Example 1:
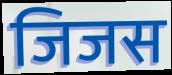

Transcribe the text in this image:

जिजस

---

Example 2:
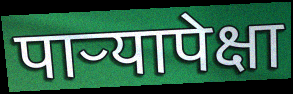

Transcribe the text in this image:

पाऱ्यापेक्षा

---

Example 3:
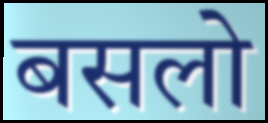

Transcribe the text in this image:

बसलो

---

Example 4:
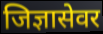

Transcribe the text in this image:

जिज्ञासेवर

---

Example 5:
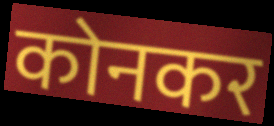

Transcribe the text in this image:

कोनकर